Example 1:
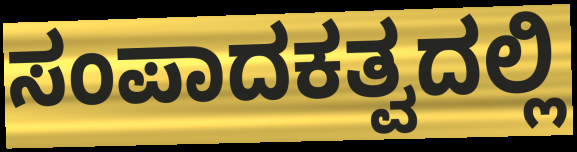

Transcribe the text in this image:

ಸಂಪಾದಕತ್ವದಲ್ಲಿ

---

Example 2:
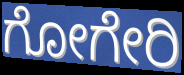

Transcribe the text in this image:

ಗೋಗೇರಿ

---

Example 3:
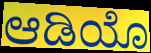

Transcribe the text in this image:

ಆಡಿಯೊ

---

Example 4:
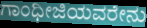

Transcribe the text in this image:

ಗಾಂಧೀಜಿಯವರೇನು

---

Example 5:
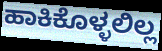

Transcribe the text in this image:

ಹಾಕಿಕೊಳ್ಳಲಿಲ್ಲ